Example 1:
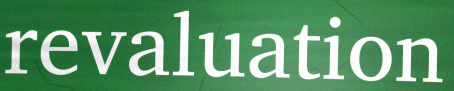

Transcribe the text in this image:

revaluation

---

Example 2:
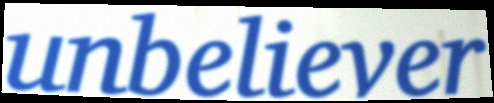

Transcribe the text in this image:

unbeliever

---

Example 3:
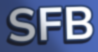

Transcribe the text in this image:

SFB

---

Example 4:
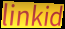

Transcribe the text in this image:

linkid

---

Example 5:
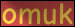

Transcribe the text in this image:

omuk